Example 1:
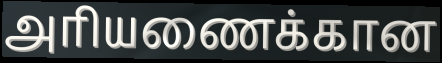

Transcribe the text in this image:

அரியணைக்கான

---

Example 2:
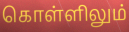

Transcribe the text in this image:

கொள்ளிலும்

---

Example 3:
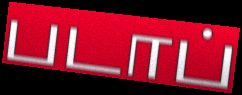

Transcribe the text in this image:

படாப்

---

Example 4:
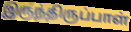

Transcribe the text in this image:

இருந்திருப்பாள்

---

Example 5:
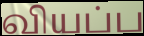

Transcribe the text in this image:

வியப்ப